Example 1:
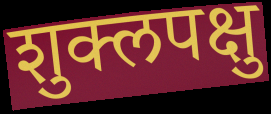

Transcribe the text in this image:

शुक्लपक्षु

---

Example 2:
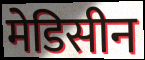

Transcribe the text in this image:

मेडिसीन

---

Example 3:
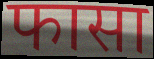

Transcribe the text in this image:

फासा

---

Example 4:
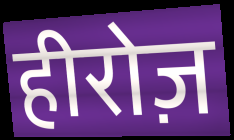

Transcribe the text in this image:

हीरोज़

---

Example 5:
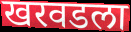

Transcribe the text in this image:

खरवडला